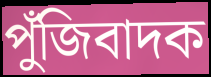
পুঁজিবাদক